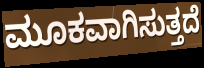
ಮೂಕವಾಗಿಸುತ್ತದೆ